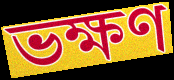
ভক্ষণ